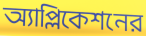
অ্যাপ্লিকেশনের